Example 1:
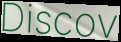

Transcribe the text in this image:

Discov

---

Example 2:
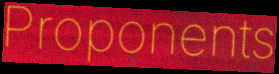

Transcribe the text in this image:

Proponents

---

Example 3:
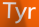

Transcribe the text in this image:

Tyr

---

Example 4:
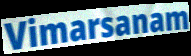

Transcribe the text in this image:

Vimarsanam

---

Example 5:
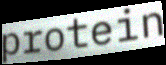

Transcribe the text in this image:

protein